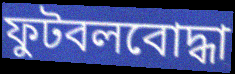
ফুটবলবোদ্ধা